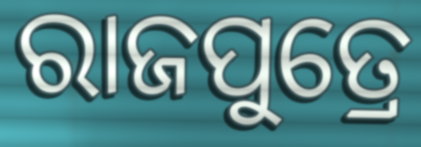
ରାଜପୁତ୍ରେ